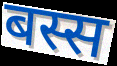
बस्स